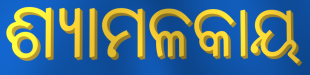
ଶ୍ୟାମଳକାୟ